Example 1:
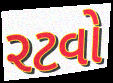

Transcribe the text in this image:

રટવો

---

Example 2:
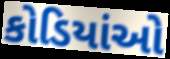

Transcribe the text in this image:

કોડિયાંઓ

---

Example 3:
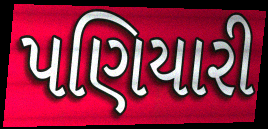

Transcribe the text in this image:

પણિયારી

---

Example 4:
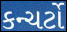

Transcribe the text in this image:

કન્ચર્ટો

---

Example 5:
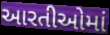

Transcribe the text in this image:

આરતીઓમાં